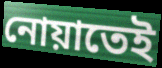
নোয়াতেই